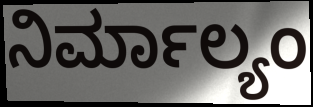
ನಿರ್ಮಾಲ್ಯಂ